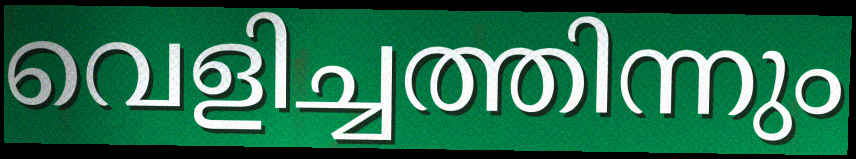
വെളിച്ചത്തിന്നും